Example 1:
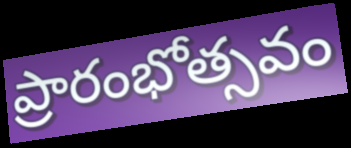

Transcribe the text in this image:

ప్రారంభోత్సవం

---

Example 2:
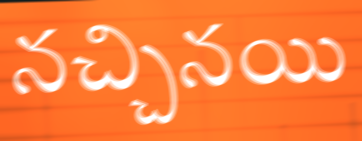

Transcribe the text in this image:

నచ్చినయి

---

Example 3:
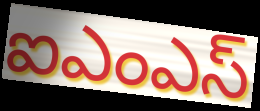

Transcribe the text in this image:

ఐఎంఎస్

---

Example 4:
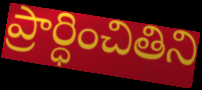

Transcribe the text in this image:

ప్రార్ధించితిని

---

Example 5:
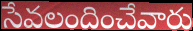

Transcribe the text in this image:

సేవలందించేవారు